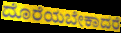
ದೊರೆಯಬೇಕಾದರೆ